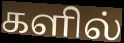
களில்